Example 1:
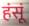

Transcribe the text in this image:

हंसूं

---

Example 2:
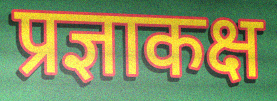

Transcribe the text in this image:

प्रज्ञाकक्ष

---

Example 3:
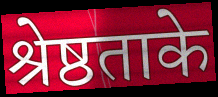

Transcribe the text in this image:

श्रेष्ठताके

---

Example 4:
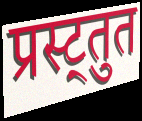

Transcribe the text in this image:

प्रस्ट्तुत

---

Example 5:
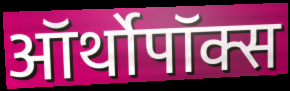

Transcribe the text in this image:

ऑर्थोपॉक्स